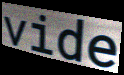
vide